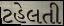
ટહેલતી